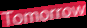
Tomorrow